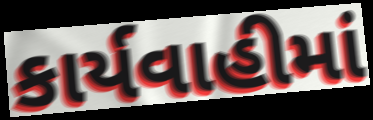
કાર્યવાહીમાં